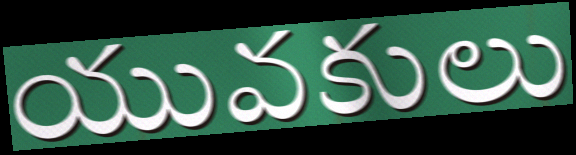
యువకులు